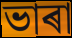
ভাৰা